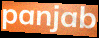
panjab